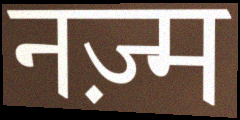
नज़्म